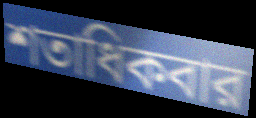
শতাধিকবার